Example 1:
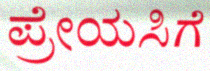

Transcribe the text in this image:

ಪ್ರೇಯಸಿಗೆ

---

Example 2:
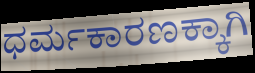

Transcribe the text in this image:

ಧರ್ಮಕಾರಣಕ್ಕಾಗಿ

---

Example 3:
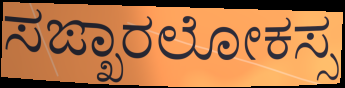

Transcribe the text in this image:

ಸಙ್ಖಾರಲೋಕಸ್ಸ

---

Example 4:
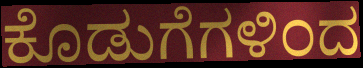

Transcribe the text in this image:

ಕೊಡುಗೆಗಳಿಂದ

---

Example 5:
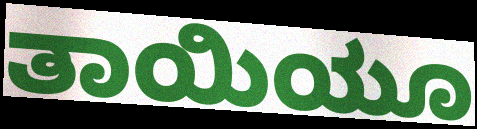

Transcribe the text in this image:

ತಾಯಿಯೂ